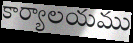
కార్యాలయము